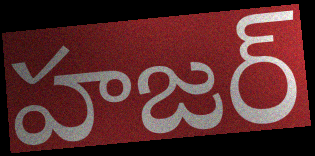
హజర్